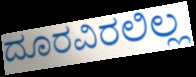
ದೂರವಿರಲಿಲ್ಲ